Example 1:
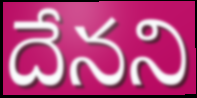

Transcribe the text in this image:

దేనని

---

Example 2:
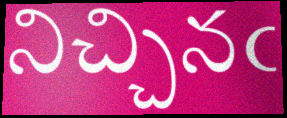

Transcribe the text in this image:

నిచ్చినఁ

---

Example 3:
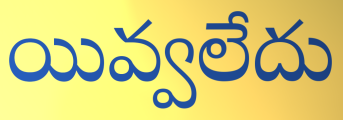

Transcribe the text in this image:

యివ్వలేదు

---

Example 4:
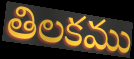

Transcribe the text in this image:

తిలకము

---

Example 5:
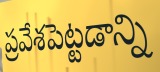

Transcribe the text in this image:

ప్రవేశపెట్టడాన్ని